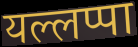
यल्लप्पा